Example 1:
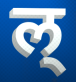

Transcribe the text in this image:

ल्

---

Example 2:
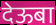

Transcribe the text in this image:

देऊबा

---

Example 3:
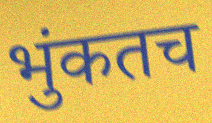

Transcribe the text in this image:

भुंकतच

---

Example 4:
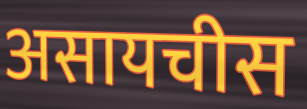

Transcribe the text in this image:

असायचीस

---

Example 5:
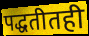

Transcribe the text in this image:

पद्धतीतही